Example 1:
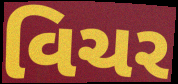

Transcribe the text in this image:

વિચર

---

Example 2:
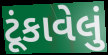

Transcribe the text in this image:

ટૂંકાવેલું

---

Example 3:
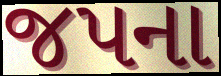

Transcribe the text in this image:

જપના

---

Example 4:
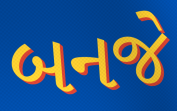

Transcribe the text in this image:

બનજે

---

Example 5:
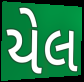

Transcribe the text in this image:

યેલ